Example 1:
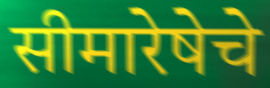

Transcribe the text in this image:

सीमारेषेचे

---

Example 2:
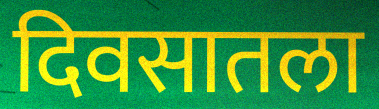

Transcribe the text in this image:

दिवसातला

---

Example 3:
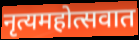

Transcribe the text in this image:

नृत्यमहोत्सवात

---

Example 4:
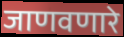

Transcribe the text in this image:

जाणवणारे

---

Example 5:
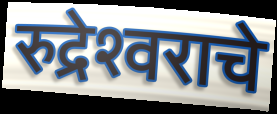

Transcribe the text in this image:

रुद्रेश्वराचे